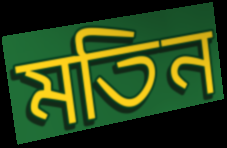
মতিন